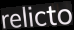
relicto